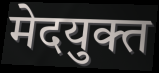
मेदयुक्त